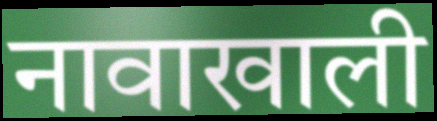
नावाखाली